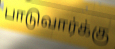
பாடுவார்க்கு